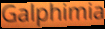
Galphimia